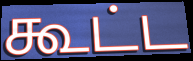
கூட்ட